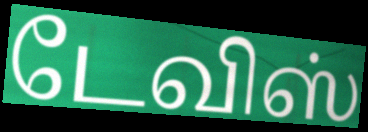
டேவிஸ்